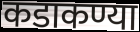
कडाकण्या